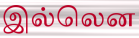
இல்லென